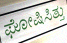
ಘೋಷಿಸಿತ್ತು